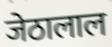
जेठालाल